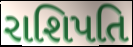
રાશિપતિ